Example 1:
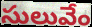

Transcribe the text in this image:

సులువేం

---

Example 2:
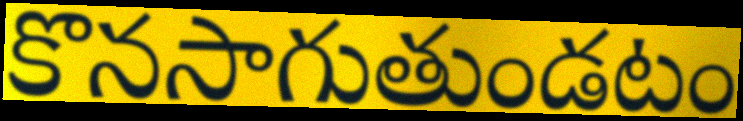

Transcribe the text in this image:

కొనసాగుతుండటం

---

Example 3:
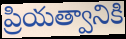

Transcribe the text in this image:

ప్రియత్వానికి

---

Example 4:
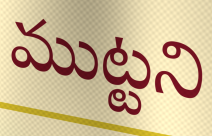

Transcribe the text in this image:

ముట్టని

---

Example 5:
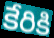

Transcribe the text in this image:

కేరికి